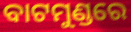
ବାଟମୁଣ୍ଡରେ